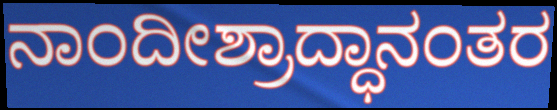
ನಾಂದೀಶ್ರಾದ್ಧಾನಂತರ